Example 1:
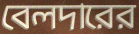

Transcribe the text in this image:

বেলদারের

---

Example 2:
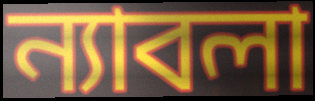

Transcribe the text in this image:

ন্যাবলা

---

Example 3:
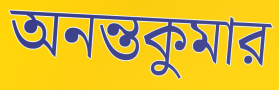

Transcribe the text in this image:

অনন্তকুমার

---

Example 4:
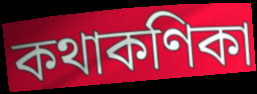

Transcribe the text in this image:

কথাকণিকা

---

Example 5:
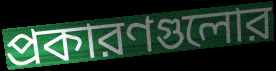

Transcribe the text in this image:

প্রকারণগুলোর